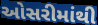
ઓસરીમાંથી